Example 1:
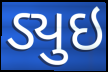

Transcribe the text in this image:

ડ્યુઇ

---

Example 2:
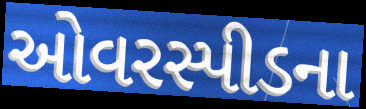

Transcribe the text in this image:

ઓવરસ્પીડના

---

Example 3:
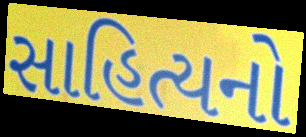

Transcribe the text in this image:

સાહિત્યનો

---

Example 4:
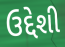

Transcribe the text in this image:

ઉદ્દેશી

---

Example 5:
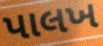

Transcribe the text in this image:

પાલખ